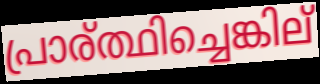
പ്രാര്ത്ഥിച്ചെങ്കില്